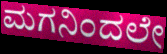
ಮಗನಿಂದಲೇ